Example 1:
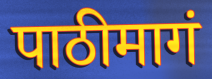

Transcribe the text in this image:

पाठीमागं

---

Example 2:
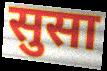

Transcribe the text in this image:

सुसा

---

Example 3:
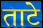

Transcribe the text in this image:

ताटे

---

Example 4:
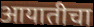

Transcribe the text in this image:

आयातीचा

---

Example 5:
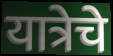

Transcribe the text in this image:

यात्रेचे